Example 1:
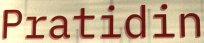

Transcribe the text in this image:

Pratidin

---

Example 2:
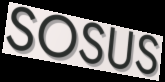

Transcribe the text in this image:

SOSUS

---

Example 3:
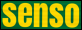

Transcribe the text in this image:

senso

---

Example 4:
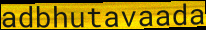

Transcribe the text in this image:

adbhutavaada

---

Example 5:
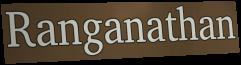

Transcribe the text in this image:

Ranganathan